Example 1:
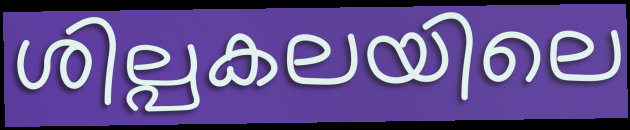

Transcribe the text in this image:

ശില്പകലയിലെ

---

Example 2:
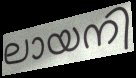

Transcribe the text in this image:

ലായനി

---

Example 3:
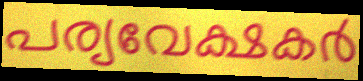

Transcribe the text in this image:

പര്യവേക്ഷകർ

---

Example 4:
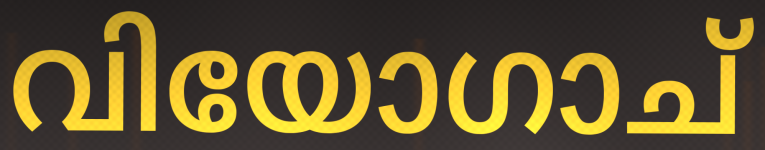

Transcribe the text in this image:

വിയോഗാച്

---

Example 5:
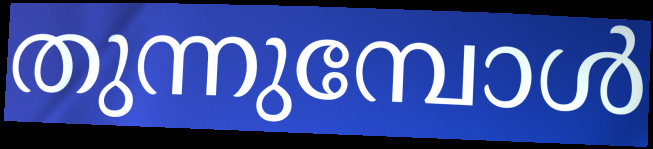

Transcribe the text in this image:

തുന്നുമ്പോൾ